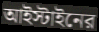
আইস্টাইনের